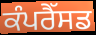
ਕੰਪਰੈੱਸਡ